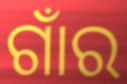
ଗାଁର